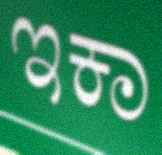
ಇಕಾ